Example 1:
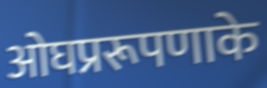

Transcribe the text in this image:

ओघप्ररूपणाके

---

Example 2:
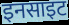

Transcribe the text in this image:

इनसाइट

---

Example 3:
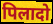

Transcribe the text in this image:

पिलादो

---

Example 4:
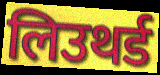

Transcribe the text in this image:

लिउथर्ड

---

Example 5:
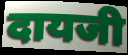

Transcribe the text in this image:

दायजी